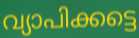
വ്യാപിക്കട്ടെ